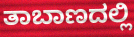
ತಾಬಾಣದಲ್ಲಿ